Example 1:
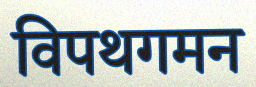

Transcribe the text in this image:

विपथगमन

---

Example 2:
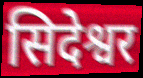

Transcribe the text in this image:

सिदेश्वर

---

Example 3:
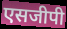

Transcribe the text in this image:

एसजीपी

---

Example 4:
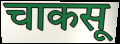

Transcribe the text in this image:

चाकसू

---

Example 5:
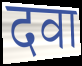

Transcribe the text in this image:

दवा